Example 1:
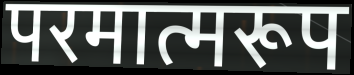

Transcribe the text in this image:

परमात्मरूप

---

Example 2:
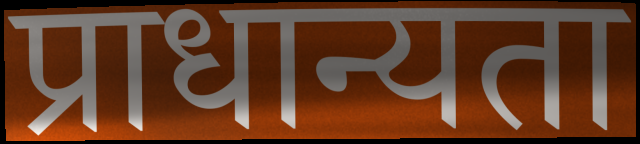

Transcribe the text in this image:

प्राधान्यता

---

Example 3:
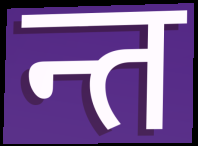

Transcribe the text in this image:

न्त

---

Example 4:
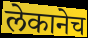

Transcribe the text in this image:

लेकानेच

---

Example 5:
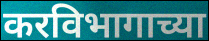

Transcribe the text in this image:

करविभागाच्या